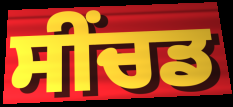
ਸੀਂਚਡ